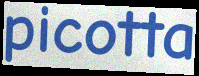
picotta